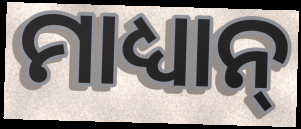
ମାଧ୍ୟାନ୍